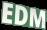
EDM